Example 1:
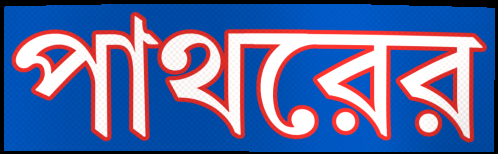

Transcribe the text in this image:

পাথরের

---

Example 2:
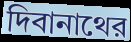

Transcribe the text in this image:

দিবানাথের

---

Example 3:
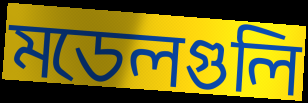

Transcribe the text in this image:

মডেলগুলি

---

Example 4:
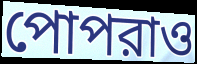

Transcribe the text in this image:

পোপরাও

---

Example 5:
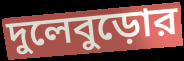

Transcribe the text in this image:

দুলেবুড়োর